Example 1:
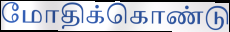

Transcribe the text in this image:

மோதிக்கொண்டு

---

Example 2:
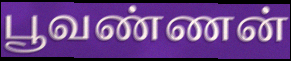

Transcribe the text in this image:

பூவண்ணன்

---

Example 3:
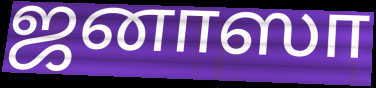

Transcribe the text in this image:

ஜனாஸா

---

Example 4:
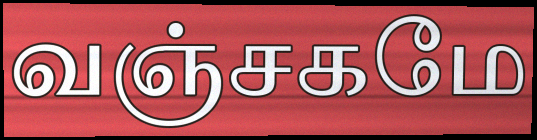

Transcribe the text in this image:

வஞ்சகமே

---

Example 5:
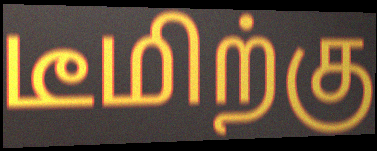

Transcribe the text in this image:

டீமிற்கு